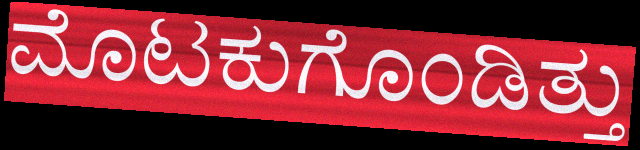
ಮೊಟಕುಗೊಂಡಿತ್ತು